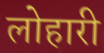
लोहारी